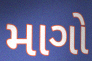
માગો